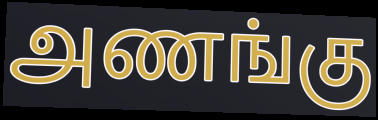
அணங்கு